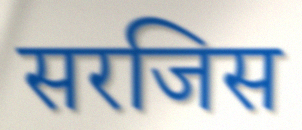
सरजिस